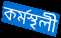
কৰ্মস্থলী